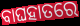
ବାଘହାତରେ